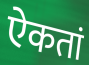
ऐकतां